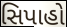
સિપાહો